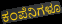
ಕಂಪೆನಿಗಳೂ